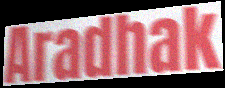
Aradhak